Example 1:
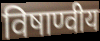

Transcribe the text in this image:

विषाण्वीय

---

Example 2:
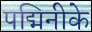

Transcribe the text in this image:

पद्मिनीके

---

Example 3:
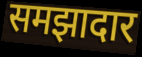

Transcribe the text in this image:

समझादार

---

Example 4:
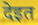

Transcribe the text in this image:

देइत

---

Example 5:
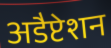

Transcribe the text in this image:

अडैप्टेशन